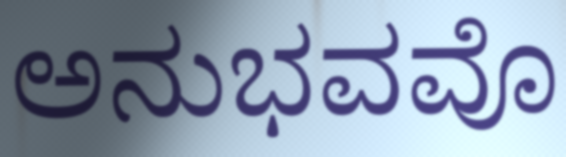
ಅನುಭವವೊ